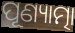
ପୂଣ୍ୟାତ୍ମା